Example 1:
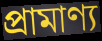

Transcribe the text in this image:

প্রামাণ্য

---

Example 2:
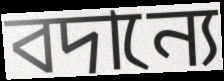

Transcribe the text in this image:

বদান্যে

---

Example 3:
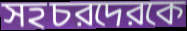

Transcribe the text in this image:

সহচরদেরকে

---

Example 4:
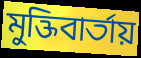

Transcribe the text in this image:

মুক্তিবার্তায়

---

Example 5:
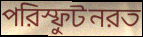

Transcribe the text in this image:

পরিস্ফুটনরত